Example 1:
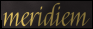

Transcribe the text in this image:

meridiem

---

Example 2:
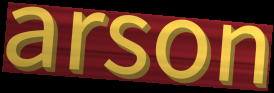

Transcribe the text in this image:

arson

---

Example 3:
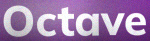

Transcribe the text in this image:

Octave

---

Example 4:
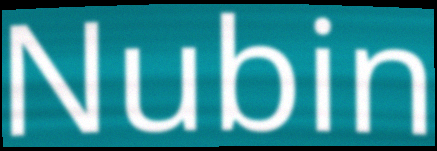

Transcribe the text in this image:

Nubin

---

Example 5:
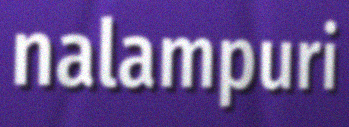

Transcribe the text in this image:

nalampuri